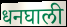
धनघाली